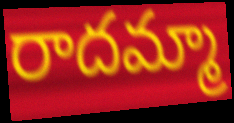
రాదమ్మా